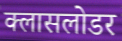
क्लासलोडर